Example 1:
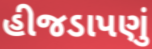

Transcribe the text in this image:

હીજડાપણું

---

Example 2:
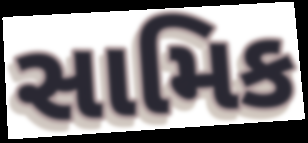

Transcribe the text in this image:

સામિક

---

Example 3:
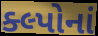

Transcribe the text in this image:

ક્લ્પોનાં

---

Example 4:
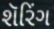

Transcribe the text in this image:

શૅરિંગ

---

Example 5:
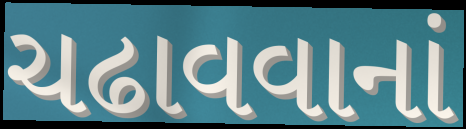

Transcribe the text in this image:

ચઢાવવાનાં